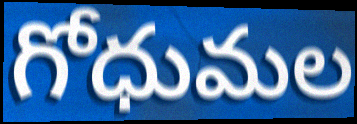
గోధుమల